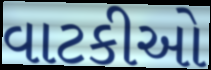
વાટકીઓ